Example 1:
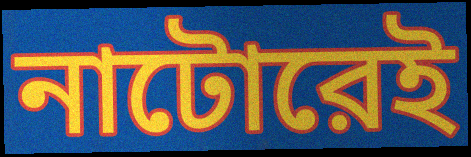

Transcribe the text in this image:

নাটোরেই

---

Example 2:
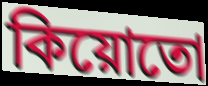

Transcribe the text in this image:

কিয়োতো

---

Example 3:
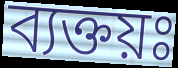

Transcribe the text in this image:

ব্যক্তয়ঃ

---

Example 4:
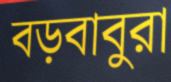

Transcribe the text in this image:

বড়বাবুরা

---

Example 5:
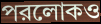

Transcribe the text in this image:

পরলোকও